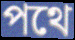
পথে